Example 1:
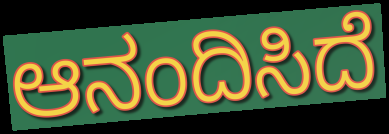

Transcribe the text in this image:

ಆನಂದಿಸಿದೆ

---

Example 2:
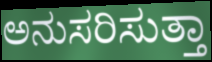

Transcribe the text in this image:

ಅನುಸರಿಸುತ್ತಾ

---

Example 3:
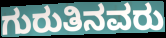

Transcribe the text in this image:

ಗುರುತಿನವರು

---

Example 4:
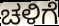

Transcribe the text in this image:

ಚಳಿಗೆ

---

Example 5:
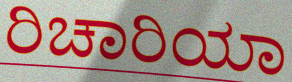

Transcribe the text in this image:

ರಿಚಾರಿಯಾ